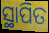
ସ୍ଥାପିତ